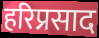
हरिप्रसाद